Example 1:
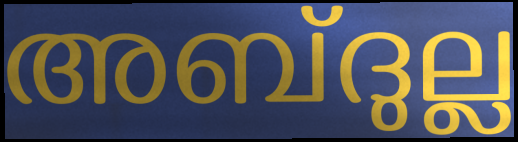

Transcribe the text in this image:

അബ്ദുല്ല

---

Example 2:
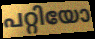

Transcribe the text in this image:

പറ്റിയോ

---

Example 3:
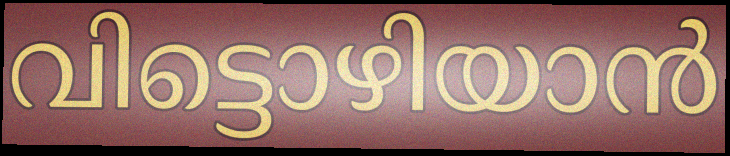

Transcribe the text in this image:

വിട്ടൊഴിയാൻ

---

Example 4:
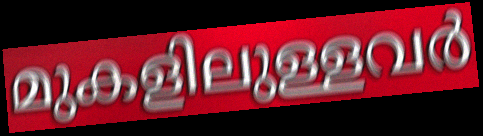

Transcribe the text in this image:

മുകളിലുള്ളവർ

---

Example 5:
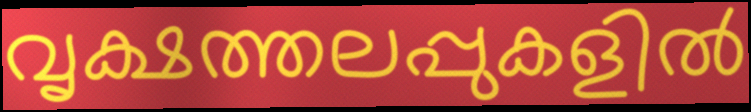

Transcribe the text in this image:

വൃക്ഷത്തലപ്പുകളിൽ